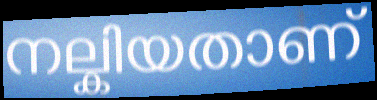
നല്കിയതാണ്